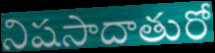
నిషసాదాతురో